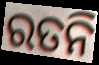
ରତନି